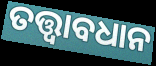
ତତ୍ତ୍ବାବଧାନ